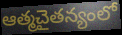
ఆత్మచైతన్యంలో